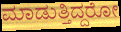
ಮಾಡುತ್ತಿದ್ದರೋ